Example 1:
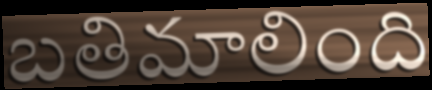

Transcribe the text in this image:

బతిమాలింది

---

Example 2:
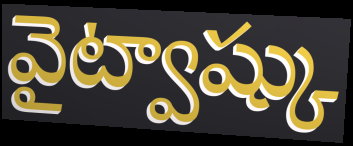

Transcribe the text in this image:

వైట్వాష్కు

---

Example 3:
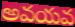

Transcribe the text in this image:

అవయవ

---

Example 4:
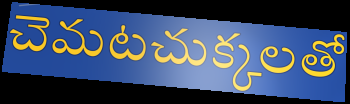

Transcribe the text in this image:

చెమటచుక్కలతో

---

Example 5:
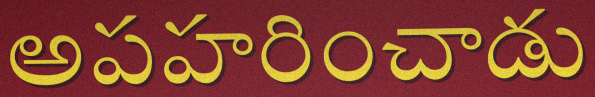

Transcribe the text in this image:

అపహరించాడు